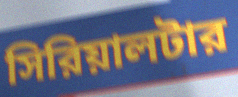
সিরিয়ালটার